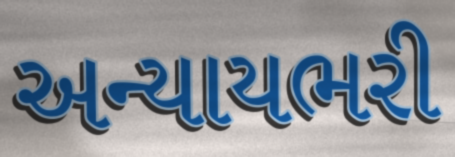
અન્યાયભરી